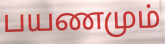
பயணமும்